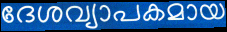
ദേശവ്യാപകമായ